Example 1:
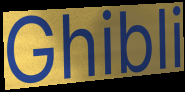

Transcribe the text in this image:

Ghibli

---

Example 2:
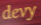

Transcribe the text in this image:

devy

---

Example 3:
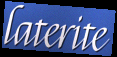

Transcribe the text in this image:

laterite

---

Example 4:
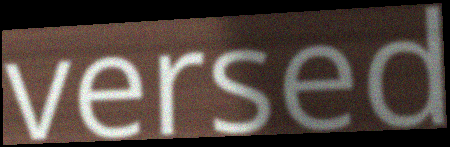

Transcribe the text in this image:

versed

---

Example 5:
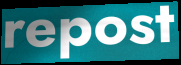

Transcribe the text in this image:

repost